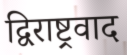
द्विराष्ट्रवाद